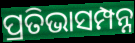
ପ୍ରତିଭାସମ୍ପନ୍ନ